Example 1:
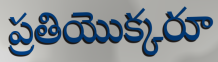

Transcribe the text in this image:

ప్రతియొక్కరూ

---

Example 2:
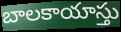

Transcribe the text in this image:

బాలకాయాస్తు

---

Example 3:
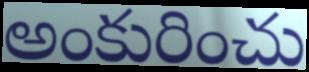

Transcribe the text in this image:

అంకురించు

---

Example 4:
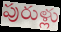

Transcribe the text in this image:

పురుళ్లు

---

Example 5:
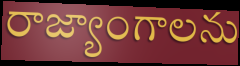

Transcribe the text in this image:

రాజ్యాంగాలను